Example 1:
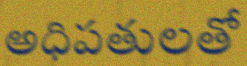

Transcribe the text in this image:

అధిపతులతో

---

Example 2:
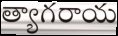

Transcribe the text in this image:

త్యాగరాయ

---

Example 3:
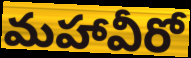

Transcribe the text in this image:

మహావీరో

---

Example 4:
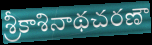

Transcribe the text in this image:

శ్రీకాశినాథచరణౌ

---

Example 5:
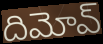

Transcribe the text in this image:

దిమోవ్